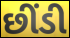
છીંડી